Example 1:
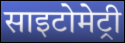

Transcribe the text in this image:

साइटोमेट्री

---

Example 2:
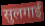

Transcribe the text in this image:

सुलगाई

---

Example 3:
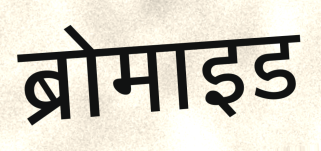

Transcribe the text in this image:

ब्रोमाइड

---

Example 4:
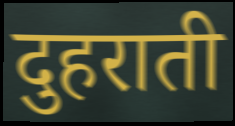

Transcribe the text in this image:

दुहराती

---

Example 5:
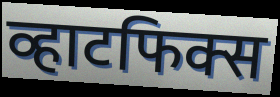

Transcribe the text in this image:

व्हाटफिक्स